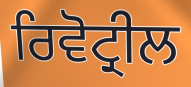
ਰਿਵੋਟ੍ਰੀਲ